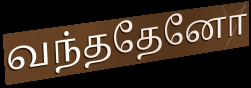
வந்ததேனோ